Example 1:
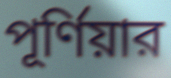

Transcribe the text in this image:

পূর্ণিয়ার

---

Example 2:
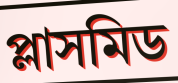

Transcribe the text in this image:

প্লাসমিড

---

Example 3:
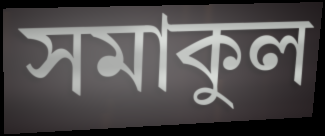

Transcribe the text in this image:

সমাকুল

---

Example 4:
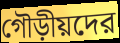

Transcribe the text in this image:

গৌড়ীয়দের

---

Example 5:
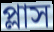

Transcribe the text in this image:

প্লাস